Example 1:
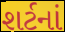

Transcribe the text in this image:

શર્ટનાં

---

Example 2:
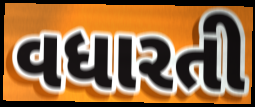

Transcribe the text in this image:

વધારતી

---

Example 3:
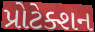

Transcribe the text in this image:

પ્રોટેક્શન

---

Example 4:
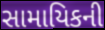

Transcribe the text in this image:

સામાયિકની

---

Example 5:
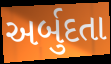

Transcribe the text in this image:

અર્બુદતા